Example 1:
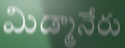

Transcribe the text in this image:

మిడ్మానేరు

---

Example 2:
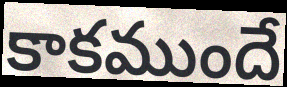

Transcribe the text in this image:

కాకముందే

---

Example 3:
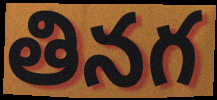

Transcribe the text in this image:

తినగ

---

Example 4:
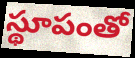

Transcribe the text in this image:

స్థూపంతో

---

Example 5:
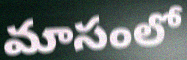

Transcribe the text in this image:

మాసంలో